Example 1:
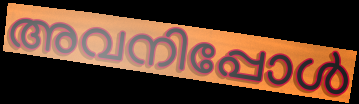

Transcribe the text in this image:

അവനിപ്പോൾ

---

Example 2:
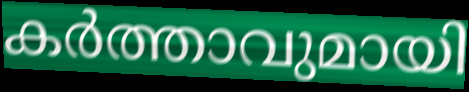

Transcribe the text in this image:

കർത്താവുമായി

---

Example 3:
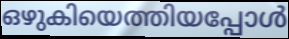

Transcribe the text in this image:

ഒഴുകിയെത്തിയപ്പോൾ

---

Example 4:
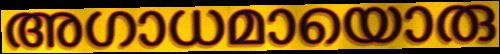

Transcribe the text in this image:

അഗാധമായൊരു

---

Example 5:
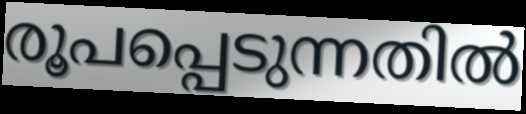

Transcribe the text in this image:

രൂപപ്പെടുന്നതിൽ